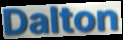
Dalton